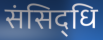
संसिद्धि